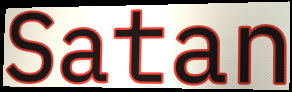
Satan